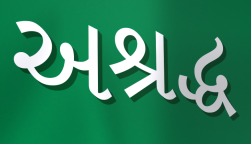
અશ્રદ્ધ